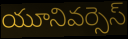
యూనివర్సెస్